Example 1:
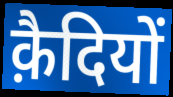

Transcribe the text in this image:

क़ैदियों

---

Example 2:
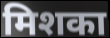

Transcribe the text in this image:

मिशका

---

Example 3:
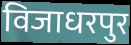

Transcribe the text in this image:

विजाधरपुर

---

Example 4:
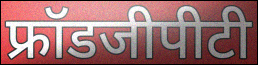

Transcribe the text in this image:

फ्रॉडजीपीटी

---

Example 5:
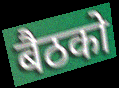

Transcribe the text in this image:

बैठको